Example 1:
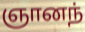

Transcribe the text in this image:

ஞானந்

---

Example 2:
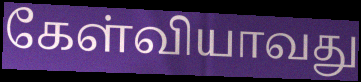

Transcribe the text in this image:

கேள்வியாவது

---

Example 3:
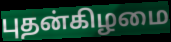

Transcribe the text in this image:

புதன்கிழமை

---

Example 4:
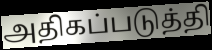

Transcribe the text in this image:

அதிகப்படுத்தி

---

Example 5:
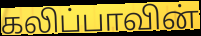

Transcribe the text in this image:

கலிப்பாவின்